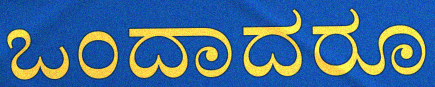
ಒಂದಾದರೂ